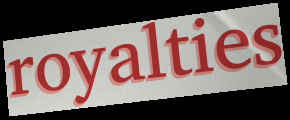
royalties